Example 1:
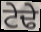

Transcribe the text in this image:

ਟੇਢੇ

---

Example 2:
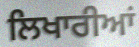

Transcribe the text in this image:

ਲਿਖਾਰੀਆਂ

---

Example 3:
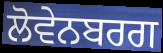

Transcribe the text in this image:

ਲੋਵੇਨਬਰਗ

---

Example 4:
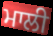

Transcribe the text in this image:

ਮਾਲੀ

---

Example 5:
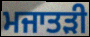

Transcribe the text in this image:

ਮਜਾਤੜੀ